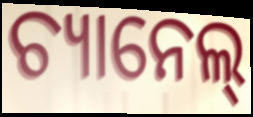
ଚ୍ୟାନେଲ୍